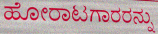
ಹೋರಾಟಗಾರರನ್ನು